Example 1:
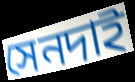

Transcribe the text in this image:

সেনদাই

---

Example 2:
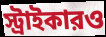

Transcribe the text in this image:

স্ট্রাইকারও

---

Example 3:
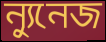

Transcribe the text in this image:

ন্যুনেজ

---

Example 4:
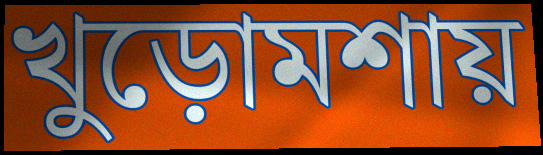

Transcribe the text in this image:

খুড়োমশায়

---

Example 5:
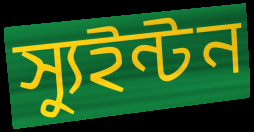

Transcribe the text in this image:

স্যুইন্টন